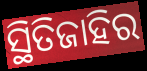
ସ୍ଥିତିଜାହିର